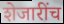
शेजारींच